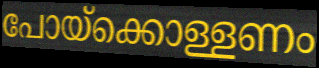
പോയ്ക്കൊള്ളണം